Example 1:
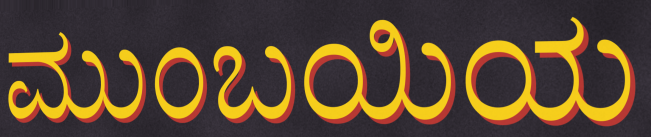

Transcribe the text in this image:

ಮುಂಬಯಿಯ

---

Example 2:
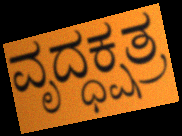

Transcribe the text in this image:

ವೃದ್ಧಕ್ಷತ್ರ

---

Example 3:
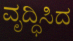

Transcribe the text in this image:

ವೃದ್ಧಿಸಿದ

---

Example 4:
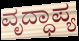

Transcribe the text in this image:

ವೃದ್ಧಾಪ್ಯ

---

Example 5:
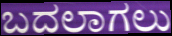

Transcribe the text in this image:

ಬದಲಾಗಲು